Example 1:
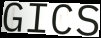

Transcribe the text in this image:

GICS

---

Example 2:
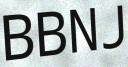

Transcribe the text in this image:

BBNJ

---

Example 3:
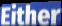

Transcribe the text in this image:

Either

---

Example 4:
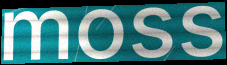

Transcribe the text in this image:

moss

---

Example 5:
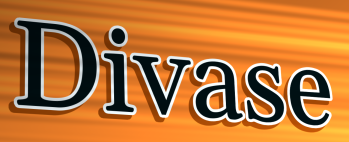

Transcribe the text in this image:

Divase